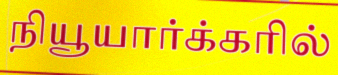
நியூயார்க்கரில்